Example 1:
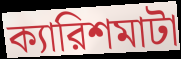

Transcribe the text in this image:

ক্যারিশমাটা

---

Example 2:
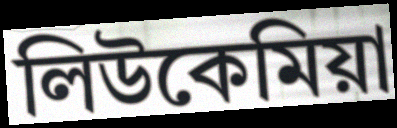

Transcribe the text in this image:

লিউকেমিয়া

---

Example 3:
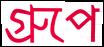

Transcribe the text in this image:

গ্রুপে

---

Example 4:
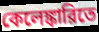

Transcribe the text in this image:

কেলেঙ্কারিতে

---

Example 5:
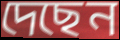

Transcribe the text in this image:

দেছেন